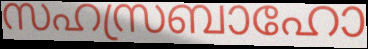
സഹസ്രബാഹോ